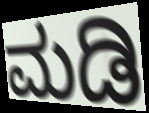
ಮಡಿ